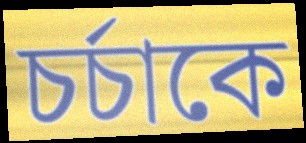
চর্চাকে